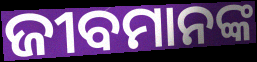
ଜୀବମାନଙ୍କ